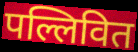
पल्लिवित